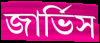
জার্ভিস